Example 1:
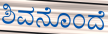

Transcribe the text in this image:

ಶಿವನೊಂದೆ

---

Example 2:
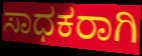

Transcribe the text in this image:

ಸಾಧಕರಾಗಿ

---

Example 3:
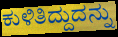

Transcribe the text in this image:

ಕುಳಿತಿದ್ದುದನ್ನು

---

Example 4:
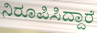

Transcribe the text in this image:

ನಿರೂಪಿಸಿದ್ದಾರೆ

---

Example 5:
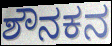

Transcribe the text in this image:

ಶೌನಕನ